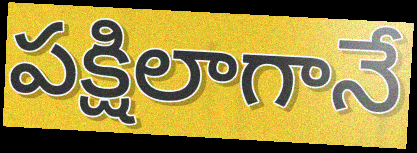
పక్షిలాగానే